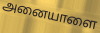
அனையாளை